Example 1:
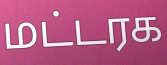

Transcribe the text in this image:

மட்டரக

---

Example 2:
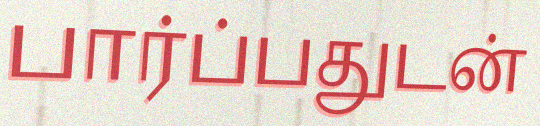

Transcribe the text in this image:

பார்ப்பதுடன்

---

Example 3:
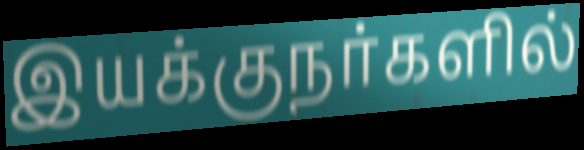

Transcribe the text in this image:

இயக்குநர்களில்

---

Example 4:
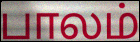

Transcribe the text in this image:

பாலம்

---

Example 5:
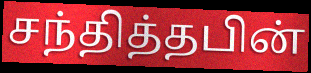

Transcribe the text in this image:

சந்தித்தபின்